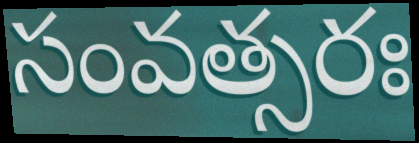
సంవత్సరః